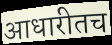
आधारीतच